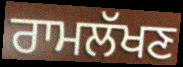
ਰਾਮਲੱਖਣ